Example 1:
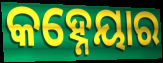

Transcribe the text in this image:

କହ୍ନେୟାର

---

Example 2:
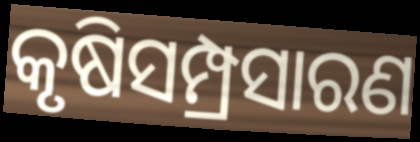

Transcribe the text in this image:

କୃଷିସମ୍ପ୍ରସାରଣ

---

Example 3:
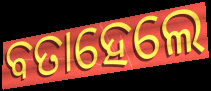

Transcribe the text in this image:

ବତାହେଲେ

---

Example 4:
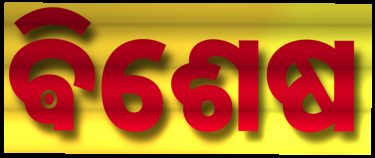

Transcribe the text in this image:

ଵିଶେଷ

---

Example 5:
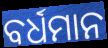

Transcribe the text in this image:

ବର୍ଧମାନ